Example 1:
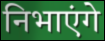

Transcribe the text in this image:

निभाएंगे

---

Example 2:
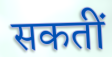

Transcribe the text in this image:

सकतीं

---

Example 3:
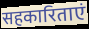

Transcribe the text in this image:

सहकारिताएं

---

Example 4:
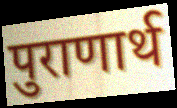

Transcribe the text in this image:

पुराणार्थ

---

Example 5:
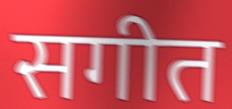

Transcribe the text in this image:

सगीत